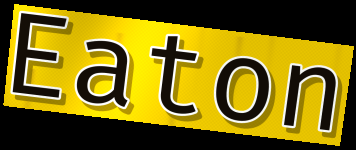
Eaton